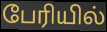
பேரியில்